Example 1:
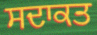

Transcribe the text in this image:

ਸਦਾਕਤ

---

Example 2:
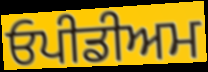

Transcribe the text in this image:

ਓਪੀਡੀਅਮ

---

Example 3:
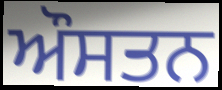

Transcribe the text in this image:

ਔਸਤਨ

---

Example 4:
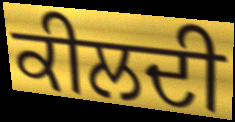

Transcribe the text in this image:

ਕੀਲਦੀ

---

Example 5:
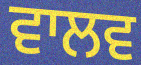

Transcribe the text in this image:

ਵਾਲਵ